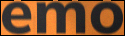
emo